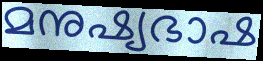
മനുഷ്യഭാഷ